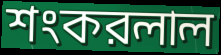
শংকরলাল